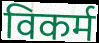
विकर्म